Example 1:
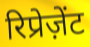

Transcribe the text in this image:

रिप्रेज़ेंट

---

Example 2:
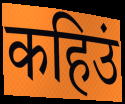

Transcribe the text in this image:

कहिउं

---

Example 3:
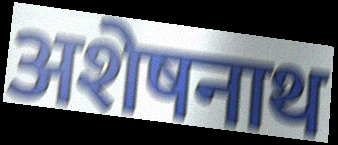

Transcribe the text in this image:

अशेषनाथ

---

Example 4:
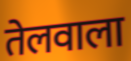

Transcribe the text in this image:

तेलवाला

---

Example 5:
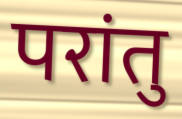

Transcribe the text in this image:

परांतु